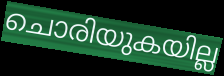
ചൊരിയുകയില്ല